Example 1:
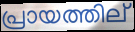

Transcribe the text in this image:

പ്രായത്തില്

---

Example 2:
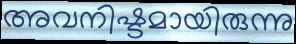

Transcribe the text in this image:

അവനിഷ്ടമായിരുന്നു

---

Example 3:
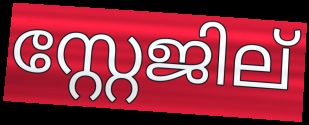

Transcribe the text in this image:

സ്റ്റേജില്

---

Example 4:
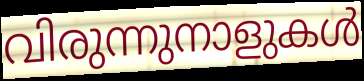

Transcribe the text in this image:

വിരുന്നുനാളുകൾ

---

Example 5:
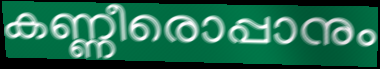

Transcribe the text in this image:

കണ്ണീരൊപ്പാനും